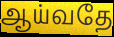
ஆய்வதே